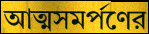
আত্মসমর্পণের